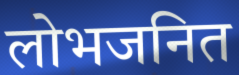
लोभजनित